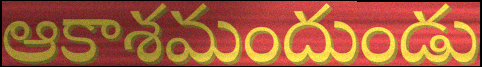
ఆకాశమందుండు